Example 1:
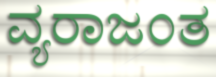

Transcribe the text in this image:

ವ್ಯರಾಜಂತ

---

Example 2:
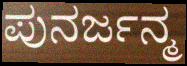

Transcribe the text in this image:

ಪುನರ್ಜನ್ಮ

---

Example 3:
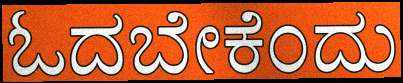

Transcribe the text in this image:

ಓದಬೇಕೆಂದು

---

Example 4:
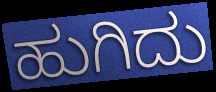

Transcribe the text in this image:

ಹುಗಿದು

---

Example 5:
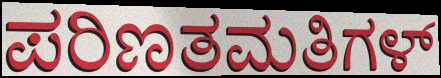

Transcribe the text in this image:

ಪರಿಣತಮತಿಗಳ್